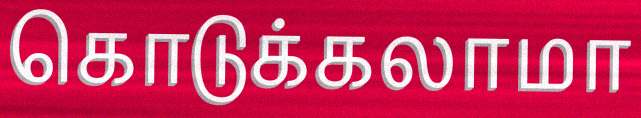
கொடுக்கலாமா